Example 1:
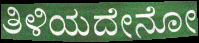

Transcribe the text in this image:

ತಿಳಿಯದೇನೋ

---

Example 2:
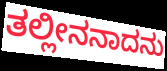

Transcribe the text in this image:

ತಲ್ಲೀನನಾದನು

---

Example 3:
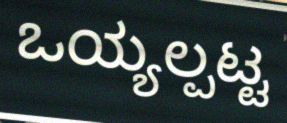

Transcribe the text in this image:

ಒಯ್ಯಲ್ಪಟ್ಟ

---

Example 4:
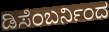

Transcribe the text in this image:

ಡಿಸೆಂಬರ್ನಿಂದ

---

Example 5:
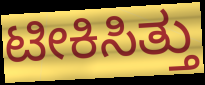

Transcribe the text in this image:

ಟೀಕಿಸಿತ್ತು